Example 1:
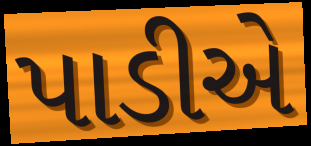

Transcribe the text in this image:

પાડીએ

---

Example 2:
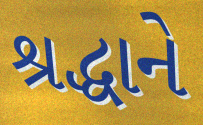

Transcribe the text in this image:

શ્રદ્ધાને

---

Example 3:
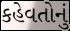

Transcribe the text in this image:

કહેવતોનું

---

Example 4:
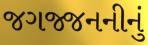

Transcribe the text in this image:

જગજ્જનનીનું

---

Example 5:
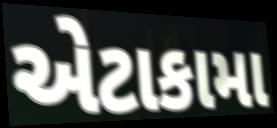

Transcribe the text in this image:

એટાકામા